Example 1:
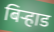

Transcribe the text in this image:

बिऱ्हाड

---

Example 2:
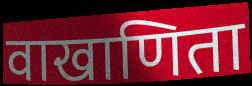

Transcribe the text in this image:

वाखाणिता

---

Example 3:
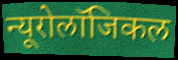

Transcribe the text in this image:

न्यूरोलॉजिकल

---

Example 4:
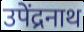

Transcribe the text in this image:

उपेंद्रनाथ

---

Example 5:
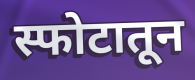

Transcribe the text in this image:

स्फोटातून